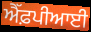
ਐੱਫ਼ਪੀਆਈ